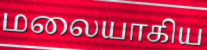
மலையாகிய